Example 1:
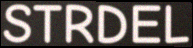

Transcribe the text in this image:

STRDEL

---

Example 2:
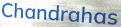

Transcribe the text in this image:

Chandrahas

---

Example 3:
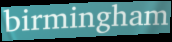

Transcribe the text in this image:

birmingham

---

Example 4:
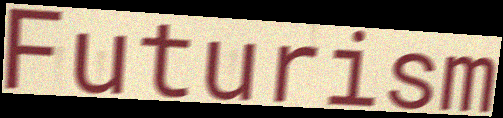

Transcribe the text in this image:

Futurism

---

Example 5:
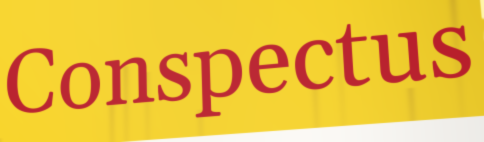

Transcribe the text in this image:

Conspectus